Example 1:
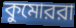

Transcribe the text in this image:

কুমোররা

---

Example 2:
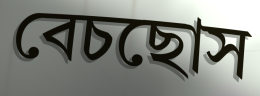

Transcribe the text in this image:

বেচছোস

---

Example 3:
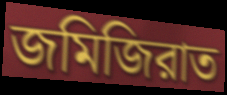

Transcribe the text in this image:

জমিজিরাত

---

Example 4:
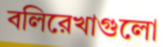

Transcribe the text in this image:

বলিরেখাগুলো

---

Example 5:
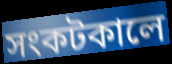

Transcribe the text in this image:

সংকটকালে